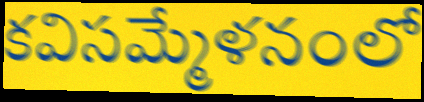
కవిసమ్మేళనంలో